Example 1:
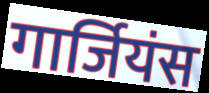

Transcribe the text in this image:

गार्जियंस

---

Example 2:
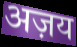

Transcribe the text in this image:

अज़य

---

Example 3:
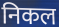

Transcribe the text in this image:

निकल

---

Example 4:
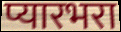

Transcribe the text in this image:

प्यारभरा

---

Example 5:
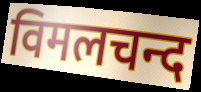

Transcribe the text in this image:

विमलचन्द